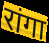
रांगा